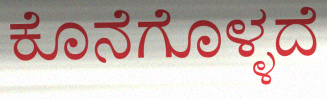
ಕೊನೆಗೊಳ್ಳದೆ